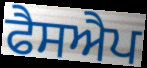
ਫੈਸਐਪ